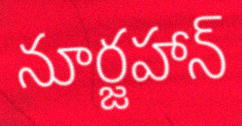
నూర్జహాన్